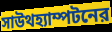
সাউথহ্যাম্পটনের